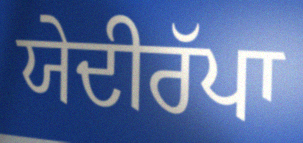
ਯੇਦੀਰੱਪਾ